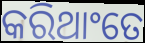
କରିଥାଂତେ